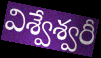
విశ్వేశ్వరీ